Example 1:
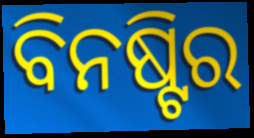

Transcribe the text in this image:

ବିନଷ୍ଟିର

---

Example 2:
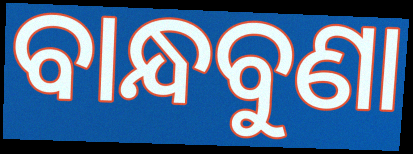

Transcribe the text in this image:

ବାନ୍ଧବୁଣା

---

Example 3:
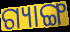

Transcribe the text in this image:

ଗ୍ୟାଙ୍ଗ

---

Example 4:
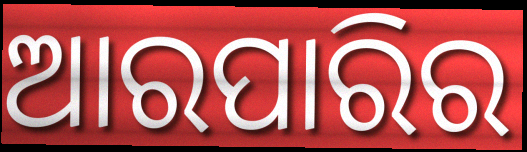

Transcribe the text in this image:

ଆରପାରିର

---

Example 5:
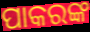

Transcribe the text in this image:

ପାକରଙ୍କ